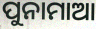
ପୁନାମାଆ